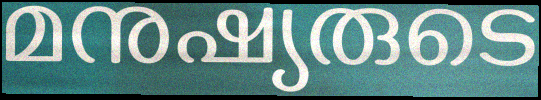
മനുഷ്യരുടെ